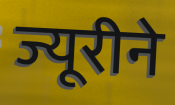
ज्यूरीने